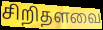
சிறிதளவை